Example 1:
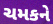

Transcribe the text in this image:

ચમકને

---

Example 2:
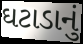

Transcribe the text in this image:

ઘટાડાનું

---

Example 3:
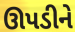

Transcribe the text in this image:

ઊપડીને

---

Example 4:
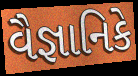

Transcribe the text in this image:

વૈજ્ઞાનિકે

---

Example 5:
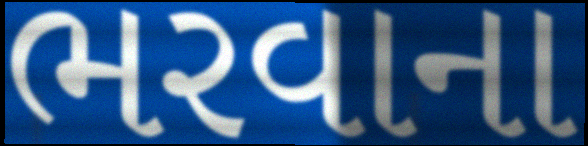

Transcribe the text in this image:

ભરવાના